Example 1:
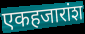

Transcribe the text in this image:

एकहजारांश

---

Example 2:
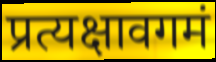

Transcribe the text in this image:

प्रत्यक्षावगमं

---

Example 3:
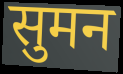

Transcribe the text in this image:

सुमन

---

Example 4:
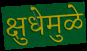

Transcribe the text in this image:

क्षुधेमुळे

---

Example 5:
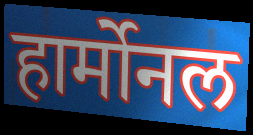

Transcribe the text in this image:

हार्मोनल